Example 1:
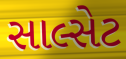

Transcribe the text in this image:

સાલ્સેટ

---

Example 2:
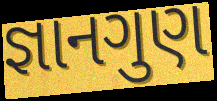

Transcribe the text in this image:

જ્ઞાનગુણ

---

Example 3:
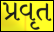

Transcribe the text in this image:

પ્રવૃત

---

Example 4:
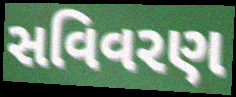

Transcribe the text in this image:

સવિવરણ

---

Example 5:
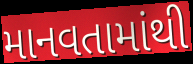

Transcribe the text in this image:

માનવતામાંથી